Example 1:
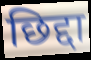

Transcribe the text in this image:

छिद्दा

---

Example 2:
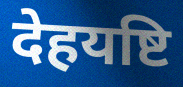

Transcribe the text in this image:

देहयष्टि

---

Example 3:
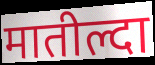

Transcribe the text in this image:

मातील्‍दा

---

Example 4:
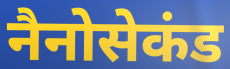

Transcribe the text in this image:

नैनोसेकंड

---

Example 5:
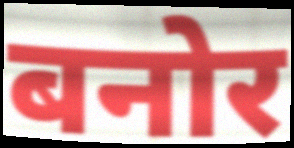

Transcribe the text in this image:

बनोर